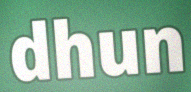
dhun